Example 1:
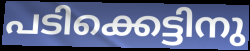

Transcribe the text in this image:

പടിക്കെട്ടിനു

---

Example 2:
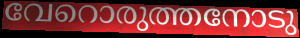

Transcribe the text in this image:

വേറൊരുത്തനോടു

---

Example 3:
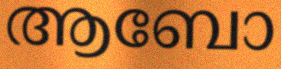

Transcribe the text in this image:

ആബോ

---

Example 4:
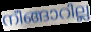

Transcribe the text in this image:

നീങ്ങാറില്ല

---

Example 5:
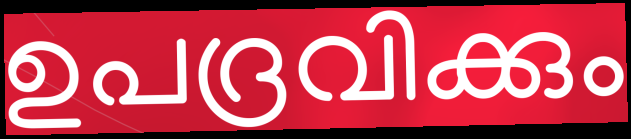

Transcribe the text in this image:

ഉപദ്രവിക്കും